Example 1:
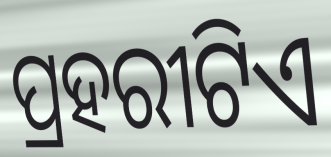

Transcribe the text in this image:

ପ୍ରହରୀଟିଏ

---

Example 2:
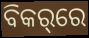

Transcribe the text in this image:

ବିକର୍‌ରେ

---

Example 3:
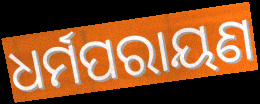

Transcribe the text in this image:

ଧର୍ମପରାୟଣ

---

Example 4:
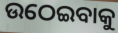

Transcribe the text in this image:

ଉଠେଇବାକୁ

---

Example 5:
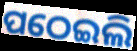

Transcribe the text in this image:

ପଠେଇଲି